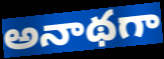
అనాథగా